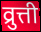
व्रुत्ती